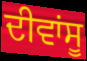
ਦੀਵਾਂਸੂ